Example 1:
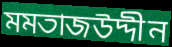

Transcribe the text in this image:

মমতাজউদ্দীন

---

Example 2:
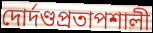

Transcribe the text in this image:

দোর্দণ্ডপ্রতাপশালী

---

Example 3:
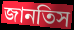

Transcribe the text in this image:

জানতিস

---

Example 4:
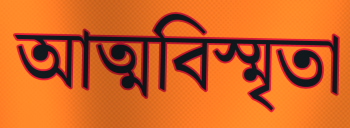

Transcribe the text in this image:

আত্মবিস্মৃতা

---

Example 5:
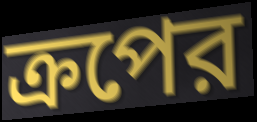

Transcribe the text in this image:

ক্রপের